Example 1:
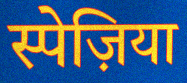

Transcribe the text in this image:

स्पेज़िया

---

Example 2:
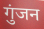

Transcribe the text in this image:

गुंजन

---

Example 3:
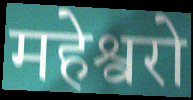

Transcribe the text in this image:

महेश्वरो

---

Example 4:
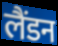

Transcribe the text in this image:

लैंडन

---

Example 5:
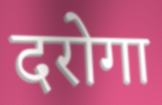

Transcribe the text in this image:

दरोगा